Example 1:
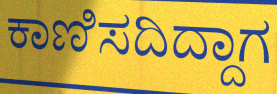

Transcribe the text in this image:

ಕಾಣಿಸದಿದ್ದಾಗ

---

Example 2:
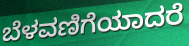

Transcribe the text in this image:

ಬೆಳವಣಿಗೆಯಾದರೆ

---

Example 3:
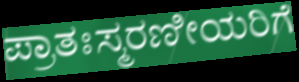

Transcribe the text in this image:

ಪ್ರಾತಃಸ್ಮರಣೀಯರಿಗೆ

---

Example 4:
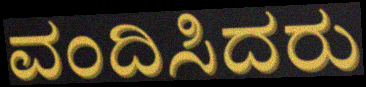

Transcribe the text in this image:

ವಂದಿಸಿದರು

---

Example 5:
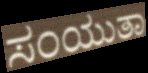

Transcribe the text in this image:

ಸಂಯುತಾ